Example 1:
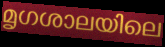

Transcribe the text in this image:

മൃഗശാലയിലെ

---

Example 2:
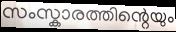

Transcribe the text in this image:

സംസ്കാരത്തിന്റെയും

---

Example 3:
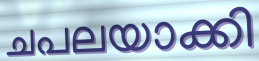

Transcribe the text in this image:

ചപലയാക്കി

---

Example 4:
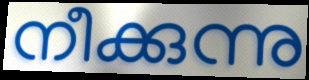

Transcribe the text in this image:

നീക്കുന്നു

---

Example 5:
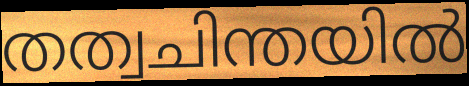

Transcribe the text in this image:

തത്വചിന്തയിൽ